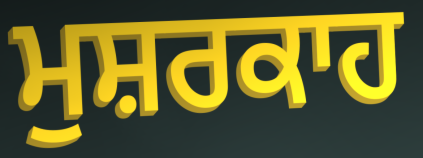
ਮੁਸ਼ਰਕਾਹ